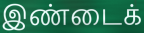
இண்டைக்